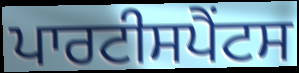
ਪਾਰਟੀਸਪੈਂਟਸ